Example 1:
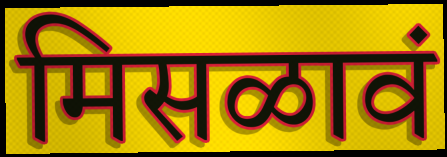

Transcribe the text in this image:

मिसळावं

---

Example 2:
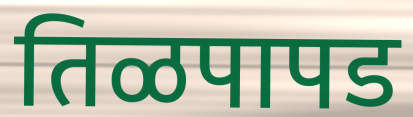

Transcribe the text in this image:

तिळपापड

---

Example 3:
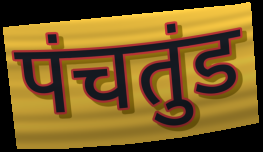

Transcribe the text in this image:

पंचतुंड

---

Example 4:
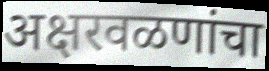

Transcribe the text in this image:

अक्षरवळणांचा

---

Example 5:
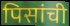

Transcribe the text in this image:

पिसांची